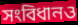
সংবিধানও